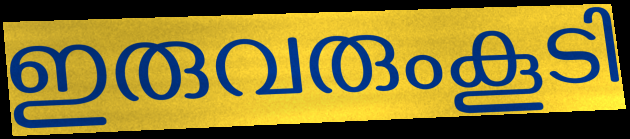
ഇരുവരുംകൂടി